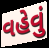
વહેવું